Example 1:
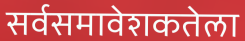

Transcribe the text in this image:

सर्वसमावेशकतेला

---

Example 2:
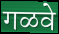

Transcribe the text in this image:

गळवे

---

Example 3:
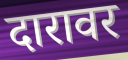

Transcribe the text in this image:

दारावर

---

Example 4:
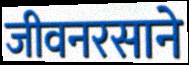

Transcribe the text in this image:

जीवनरसाने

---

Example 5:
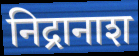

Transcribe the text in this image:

निद्रानाश